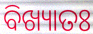
ବିଖ୍ୟାତଃ